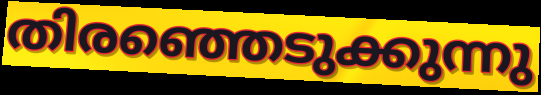
തിരഞ്ഞെടുക്കുന്നു